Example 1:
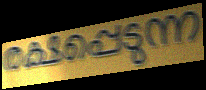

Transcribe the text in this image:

രക്ഷപ്പെടുന്ന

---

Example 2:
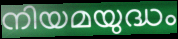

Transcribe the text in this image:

നിയമയുദ്ധം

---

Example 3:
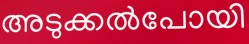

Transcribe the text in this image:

അടുക്കൽപോയി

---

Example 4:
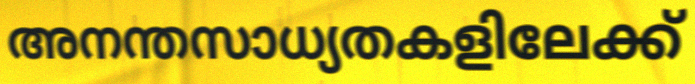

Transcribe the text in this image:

അനന്തസാധ്യതകളിലേക്ക്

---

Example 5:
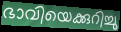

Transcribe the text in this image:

ഭാവിയെക്കുറിച്ചു